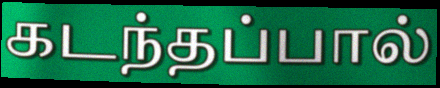
கடந்தப்பால்